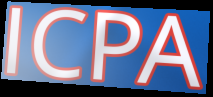
ICPA